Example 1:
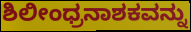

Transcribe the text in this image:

ಶಿಲೀಂಧ್ರನಾಶಕವನ್ನು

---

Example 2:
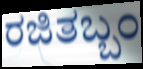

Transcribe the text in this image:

ರಜಿತಬ್ಬಂ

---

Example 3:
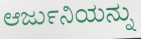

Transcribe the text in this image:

ಆರ್ಜುನಿಯನ್ನು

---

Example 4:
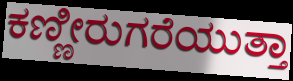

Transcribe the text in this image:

ಕಣ್ಣೀರುಗರೆಯುತ್ತಾ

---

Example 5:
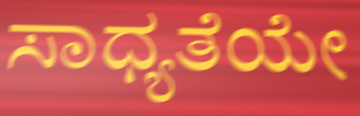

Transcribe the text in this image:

ಸಾಧ್ಯತೆಯೇ